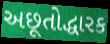
અછૂતોદ્ધારક